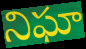
నిఘా